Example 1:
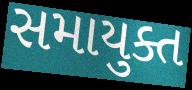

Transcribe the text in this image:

સમાયુક્ત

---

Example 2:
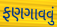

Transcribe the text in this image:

ફણગાવવું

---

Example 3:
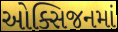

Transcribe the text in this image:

ઓક્સિજનમાં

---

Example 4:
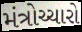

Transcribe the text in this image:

મંત્રોચ્ચારો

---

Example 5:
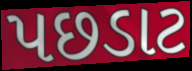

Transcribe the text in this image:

પછડાટ